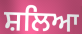
ਸ਼ਲਿਆ